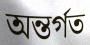
অন্তর্গত